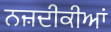
ਨਜ਼ਦੀਕੀਆਂ